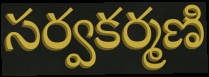
సర్వకర్మణి